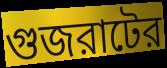
গুজরাটের